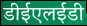
डीईएलईडी